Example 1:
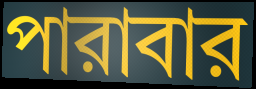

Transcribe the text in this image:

পারাবার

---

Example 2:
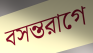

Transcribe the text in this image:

বসন্তরাগে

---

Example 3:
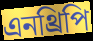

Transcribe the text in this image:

এনথ্রিপি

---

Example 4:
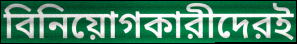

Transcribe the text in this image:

বিনিয়োগকারীদেরই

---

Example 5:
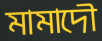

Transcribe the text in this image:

মামাদৌ